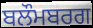
ਬਲੌਮਬਰਗ